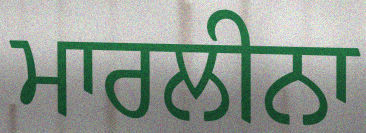
ਮਾਰਲੀਨਾ